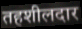
तहशीलदार